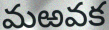
మఱవక